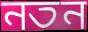
নতন